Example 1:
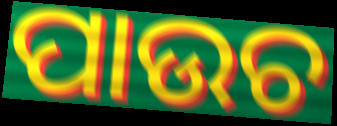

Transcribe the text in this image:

ପାଉଚ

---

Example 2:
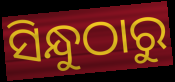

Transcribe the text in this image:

ସିନ୍ଧୁଠାରୁ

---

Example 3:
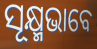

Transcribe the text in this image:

ସୂକ୍ଷ୍ମଭାବେ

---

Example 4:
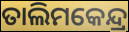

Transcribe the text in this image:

ତାଲିମକେନ୍ଦ୍ର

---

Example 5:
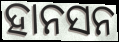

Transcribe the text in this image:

ହାନସନ